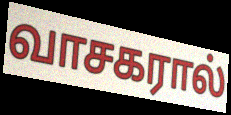
வாசகரால்